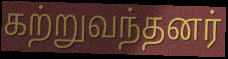
கற்றுவந்தனர்